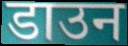
डाउन